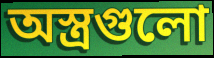
অস্ত্রগুলো